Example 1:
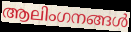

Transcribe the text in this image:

ആലിംഗനങ്ങൾ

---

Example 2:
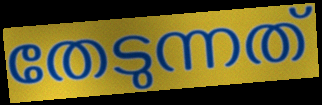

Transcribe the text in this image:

തേടുന്നത്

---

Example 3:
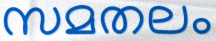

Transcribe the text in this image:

സമതലം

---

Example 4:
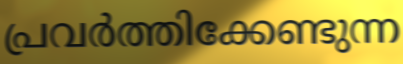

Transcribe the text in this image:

പ്രവർത്തിക്കേണ്ടുന്ന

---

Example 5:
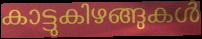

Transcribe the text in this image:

കാട്ടുകിഴങ്ങുകൾ